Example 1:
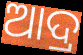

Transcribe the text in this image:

ଆଦ୍ର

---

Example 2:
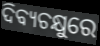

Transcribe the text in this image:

ଦିବ୍ୟଚକ୍ଷୁରେ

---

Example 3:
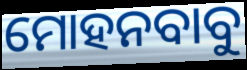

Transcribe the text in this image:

ମୋହନବାବୁ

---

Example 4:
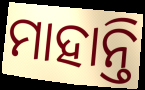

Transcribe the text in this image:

ମାହାନ୍ତି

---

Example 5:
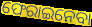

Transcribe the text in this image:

ଫେରାଇନେବା